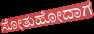
ಸೋತುಹೋದಾಗ